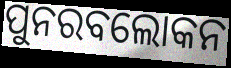
ପୁନରବଲୋକନ